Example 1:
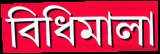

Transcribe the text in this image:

বিধিমালা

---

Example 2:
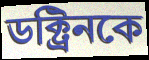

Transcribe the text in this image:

ডক্ট্রিনকে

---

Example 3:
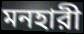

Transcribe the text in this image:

মনহারী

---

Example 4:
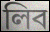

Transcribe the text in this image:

লিব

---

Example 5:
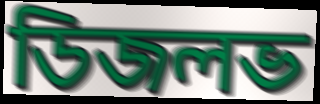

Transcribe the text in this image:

ডিজলভ